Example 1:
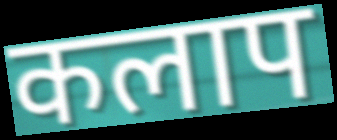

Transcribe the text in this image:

कलाप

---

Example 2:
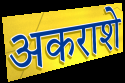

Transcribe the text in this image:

अकराशे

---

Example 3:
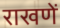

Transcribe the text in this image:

राखणें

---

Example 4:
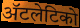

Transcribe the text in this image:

ॲटलेटिको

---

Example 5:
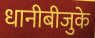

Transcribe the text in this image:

धानीबीजुके